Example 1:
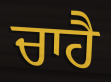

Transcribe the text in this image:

ਚਾਹੈ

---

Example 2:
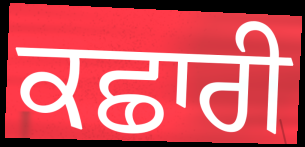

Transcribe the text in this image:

ਕਛਾਰੀ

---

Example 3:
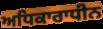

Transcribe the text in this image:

ਅਧਿਕਾਰਾਧੀਨ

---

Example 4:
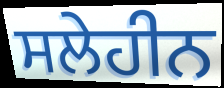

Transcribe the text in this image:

ਸਲੇਹੀਨ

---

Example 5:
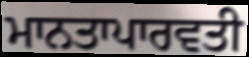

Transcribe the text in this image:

ਮਾਨਤਾਪਾਰਵਤੀ